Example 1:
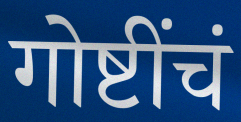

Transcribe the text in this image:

गोष्टींचं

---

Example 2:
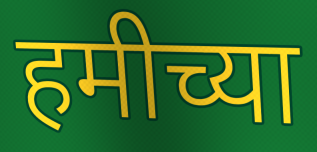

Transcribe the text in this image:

हमीच्या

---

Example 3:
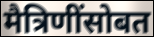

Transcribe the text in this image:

मैत्रिणींसोबत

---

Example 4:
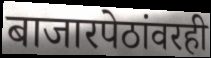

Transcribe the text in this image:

बाजारपेठांवरही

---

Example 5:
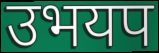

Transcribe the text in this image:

उभयप